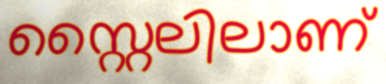
സ്റ്റൈലിലാണ്